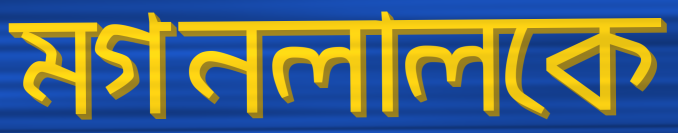
মগনলালকে